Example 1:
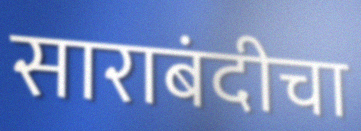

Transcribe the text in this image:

साराबंदीचा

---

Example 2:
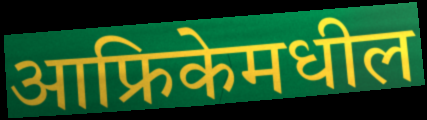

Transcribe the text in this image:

आफ्रिकेमधील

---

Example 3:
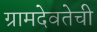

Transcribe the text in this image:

ग्रामदेवतेची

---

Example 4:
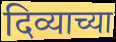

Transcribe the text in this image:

दिव्याच्या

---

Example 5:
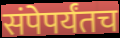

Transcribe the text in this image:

संपेपर्यंतच